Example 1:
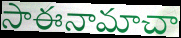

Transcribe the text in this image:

సాఈనామాచా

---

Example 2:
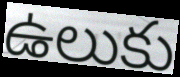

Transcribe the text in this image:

ఉలుకు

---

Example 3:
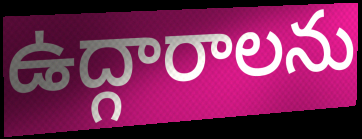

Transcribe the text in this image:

ఉద్గారాలను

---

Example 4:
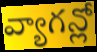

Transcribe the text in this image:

వ్యాగన్లో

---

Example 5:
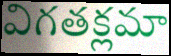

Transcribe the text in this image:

విగతక్లమా